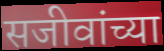
सजीवांच्या